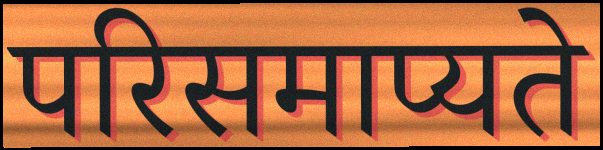
परिसमाप्यते